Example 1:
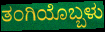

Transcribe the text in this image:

ತಂಗಿಯೊಬ್ಬಳು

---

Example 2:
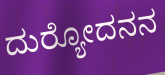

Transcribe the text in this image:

ದುರ್‍ಯೋದನನ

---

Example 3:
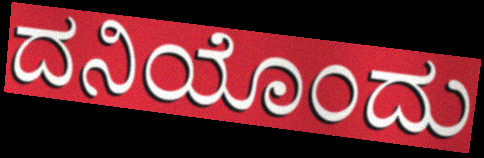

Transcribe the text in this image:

ದನಿಯೊಂದು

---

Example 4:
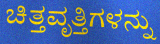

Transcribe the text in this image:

ಚಿತ್ತವೃತ್ತಿಗಳನ್ನು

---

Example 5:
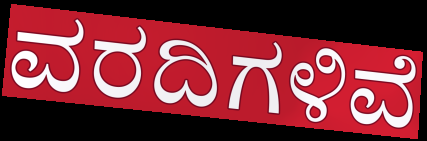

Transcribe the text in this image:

ವರದಿಗಳಿವೆ